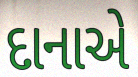
દાનાએ